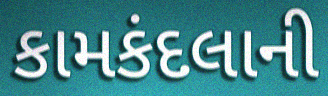
કામકંદલાની